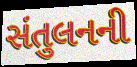
સંતુલનની